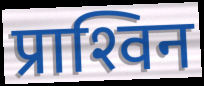
प्राश्विन